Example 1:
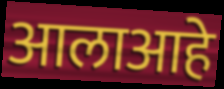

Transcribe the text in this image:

आलाआहे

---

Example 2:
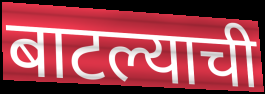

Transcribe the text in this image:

बाटल्याची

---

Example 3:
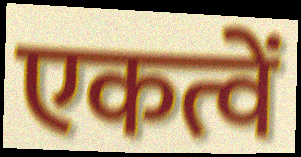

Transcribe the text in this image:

एकत्वें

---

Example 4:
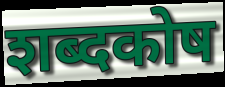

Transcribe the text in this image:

शब्दकोष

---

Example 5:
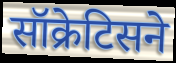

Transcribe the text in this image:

सॉक्रेटिसने